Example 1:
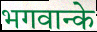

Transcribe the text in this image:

भगवान्के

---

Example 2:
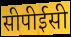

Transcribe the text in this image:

सीपीईसी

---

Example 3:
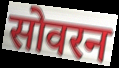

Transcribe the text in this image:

सोवरन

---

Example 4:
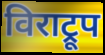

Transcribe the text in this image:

विराट्रूप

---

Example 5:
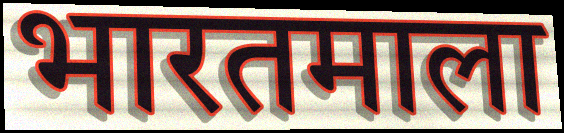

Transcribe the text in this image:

भारतमाला